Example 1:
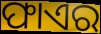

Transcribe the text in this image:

ଫାଏର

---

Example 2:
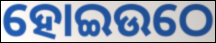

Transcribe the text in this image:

ହୋଇଉଠେ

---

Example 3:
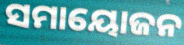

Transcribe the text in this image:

ସମାୟୋଜନ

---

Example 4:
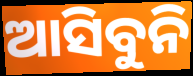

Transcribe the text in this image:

ଆସିବୁନି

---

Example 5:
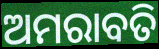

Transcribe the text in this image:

ଅମରାବତି